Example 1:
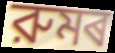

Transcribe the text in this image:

ৰুমৰ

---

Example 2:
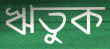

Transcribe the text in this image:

ঋতুক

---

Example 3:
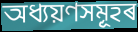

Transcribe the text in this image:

অধ্যয়ণসমূহৰ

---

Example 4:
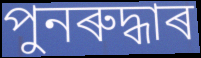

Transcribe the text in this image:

পুনৰুদ্ধাৰ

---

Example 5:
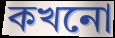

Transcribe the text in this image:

কখনো